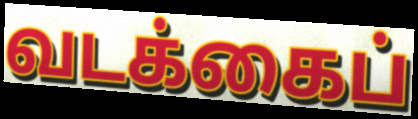
வடக்கைப்